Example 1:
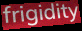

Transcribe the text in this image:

frigidity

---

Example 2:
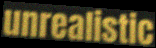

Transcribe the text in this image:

unrealistic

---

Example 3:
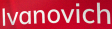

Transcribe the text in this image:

Ivanovich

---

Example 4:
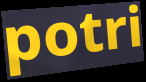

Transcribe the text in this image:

potri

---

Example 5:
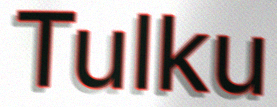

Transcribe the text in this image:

Tulku